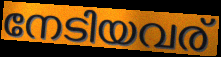
നേടിയവര്